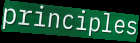
principles